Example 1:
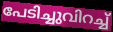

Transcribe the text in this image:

പേടിച്ചുവിറച്ച്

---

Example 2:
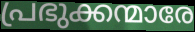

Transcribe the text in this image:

പ്രഭുക്കന്മാരേ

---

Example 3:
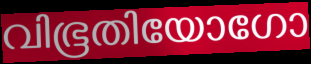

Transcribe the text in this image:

വിഭൂതിയോഗോ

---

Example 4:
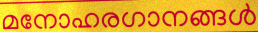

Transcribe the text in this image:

മനോഹരഗാനങ്ങൾ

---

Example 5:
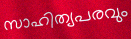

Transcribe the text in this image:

സാഹിത്യപരവും